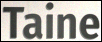
Taine